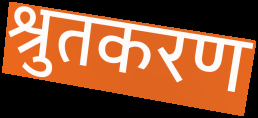
श्रुतकरण